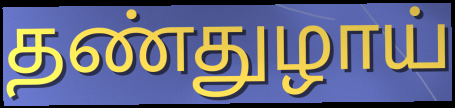
தண்துழாய்